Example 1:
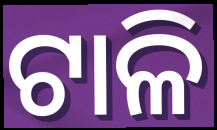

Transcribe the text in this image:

ଟାଳି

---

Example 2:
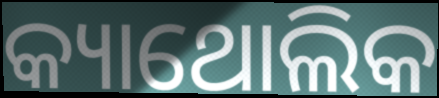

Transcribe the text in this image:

କ୍ୟାଥୋଲିକ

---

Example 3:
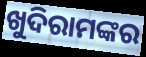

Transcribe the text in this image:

ଖୁଦିରାମଙ୍କର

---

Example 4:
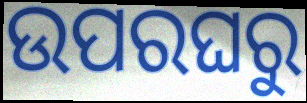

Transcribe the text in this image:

ଉପରଘରୁ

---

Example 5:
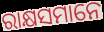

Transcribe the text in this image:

ରାକ୍ଷସମାନେ